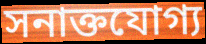
সনাক্তযোগ্য